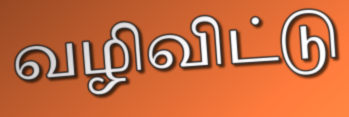
வழிவிட்டு